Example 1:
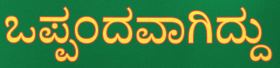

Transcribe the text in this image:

ಒಪ್ಪಂದವಾಗಿದ್ದು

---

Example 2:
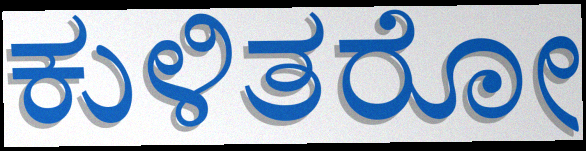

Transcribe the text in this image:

ಕುಳಿತರೋ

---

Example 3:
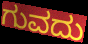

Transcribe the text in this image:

ಗುವದು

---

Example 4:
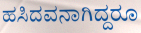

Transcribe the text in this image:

ಹಸಿದವನಾಗಿದ್ದರೂ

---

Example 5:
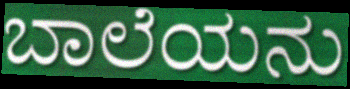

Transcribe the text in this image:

ಬಾಲೆಯನು